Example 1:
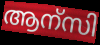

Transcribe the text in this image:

ആന്സി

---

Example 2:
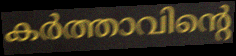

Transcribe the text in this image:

കർത്താവിന്റെ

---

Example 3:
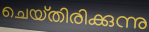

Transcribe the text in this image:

ചെയ്‌തിരിക്കുന്നു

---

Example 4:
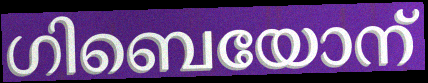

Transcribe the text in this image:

ഗിബെയോന്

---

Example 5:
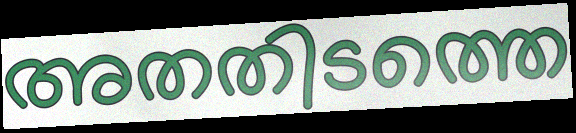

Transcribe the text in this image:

അതതിടത്തെ